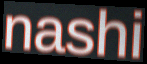
nashi